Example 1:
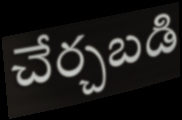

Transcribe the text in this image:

చేర్చబడి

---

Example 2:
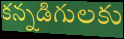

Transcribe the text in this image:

కన్నడిగులకు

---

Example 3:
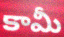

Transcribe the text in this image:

కామీ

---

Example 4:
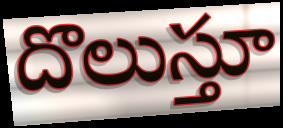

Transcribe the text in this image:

దొలుస్తూ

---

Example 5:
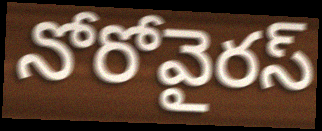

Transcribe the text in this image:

నోరోవైరస్